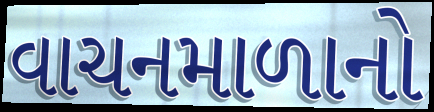
વાચનમાળાનો